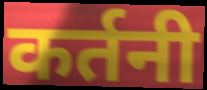
कर्तनी